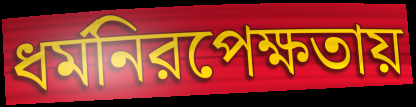
ধর্মনিরপেক্ষতায়